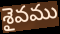
శైవము